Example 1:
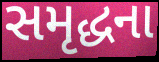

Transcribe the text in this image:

સમૃદ્ધના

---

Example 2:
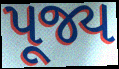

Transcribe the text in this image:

પૂજ્ય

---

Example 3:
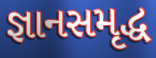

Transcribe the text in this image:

જ્ઞાનસમૃદ્ધ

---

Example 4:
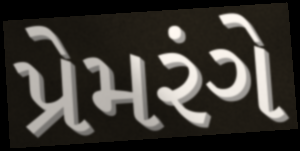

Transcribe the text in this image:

પ્રેમરંગે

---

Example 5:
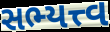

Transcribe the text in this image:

સભ્યત્ત્વ